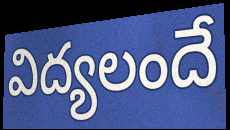
విద్యలందే